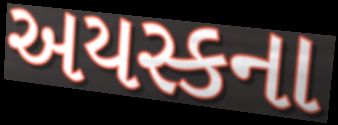
અયસ્કના